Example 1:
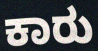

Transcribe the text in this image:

ಕಾರು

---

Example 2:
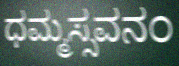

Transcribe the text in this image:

ಧಮ್ಮಸ್ಸವನಂ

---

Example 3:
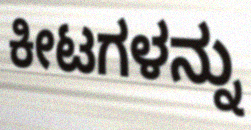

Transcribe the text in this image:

ಕೀಟಗಳನ್ನು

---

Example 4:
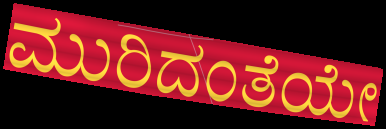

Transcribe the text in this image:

ಮುರಿದಂತೆಯೇ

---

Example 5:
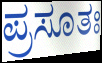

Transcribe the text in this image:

ಪ್ರಸೂತಃ